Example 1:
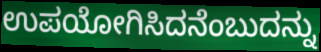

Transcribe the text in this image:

ಉಪಯೋಗಿಸಿದನೆಂಬುದನ್ನು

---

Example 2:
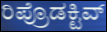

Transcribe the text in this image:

ರಿಪ್ರೊಡಕ್ಟಿವ್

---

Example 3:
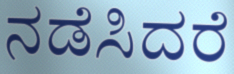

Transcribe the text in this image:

ನಡೆಸಿದರೆ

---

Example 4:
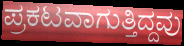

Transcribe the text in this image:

ಪ್ರಕಟವಾಗುತ್ತಿದ್ದವು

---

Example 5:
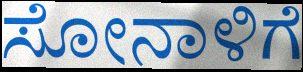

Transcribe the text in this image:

ಸೋನಾಳಿಗೆ